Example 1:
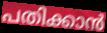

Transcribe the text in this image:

പതിക്കാൻ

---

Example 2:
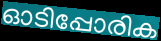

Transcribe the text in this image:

ഓടിപ്പോരിക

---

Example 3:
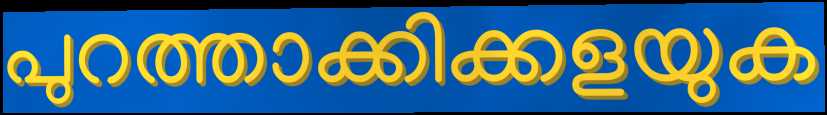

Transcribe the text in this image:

പുറത്താക്കിക്കളയുക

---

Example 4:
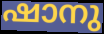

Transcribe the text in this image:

ഷാനു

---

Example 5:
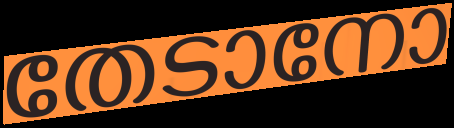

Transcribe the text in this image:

തേടാനോ